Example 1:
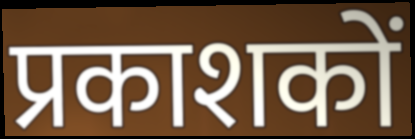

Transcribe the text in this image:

प्रकाशकों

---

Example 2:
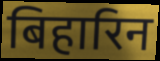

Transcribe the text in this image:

बिहारिन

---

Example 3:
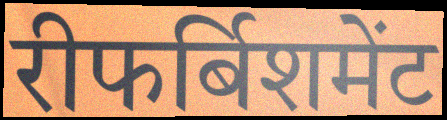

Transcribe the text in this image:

रीफर्बिशमेंट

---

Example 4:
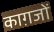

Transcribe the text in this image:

काग़जों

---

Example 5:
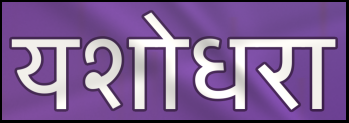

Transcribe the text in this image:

यशोधरा